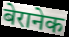
बेरानेक